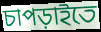
চাপড়াইতে